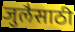
जुलैसाठी